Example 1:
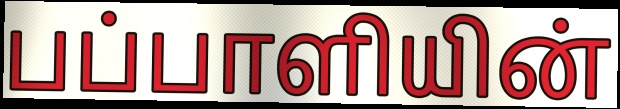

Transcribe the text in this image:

பப்பாளியின்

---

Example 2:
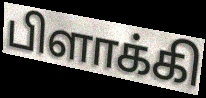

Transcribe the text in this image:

பிளாக்கி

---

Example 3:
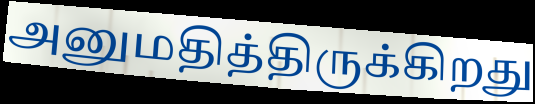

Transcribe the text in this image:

அனுமதித்திருக்கிறது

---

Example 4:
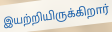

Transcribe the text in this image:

இயற்றியிருக்கிறார்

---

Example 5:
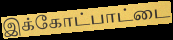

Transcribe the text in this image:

இக்கோட்பாட்டை